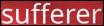
sufferer